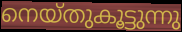
നെയ്തുകൂട്ടുന്നു